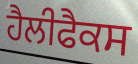
ਹੈਲੀਫੈਕਸ